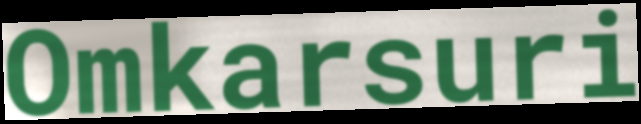
Omkarsuri